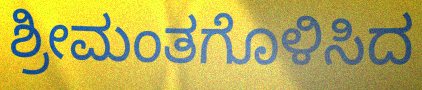
ಶ್ರೀಮಂತಗೊಳಿಸಿದ